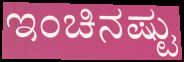
ಇಂಚಿನಷ್ಟು